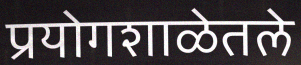
प्रयोगशाळेतले